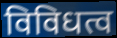
विविधत्व